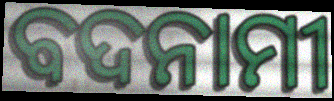
ବଦନାମୀ